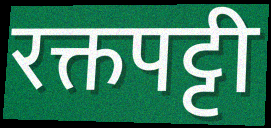
रक्तपट्टी